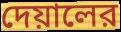
দেয়ালের